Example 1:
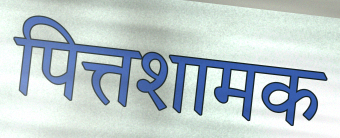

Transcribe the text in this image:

पित्तशामक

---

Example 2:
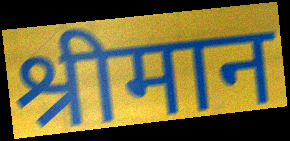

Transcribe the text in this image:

श्रीमान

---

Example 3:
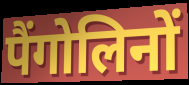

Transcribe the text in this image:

पैंगोलिनों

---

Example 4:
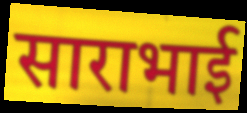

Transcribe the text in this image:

साराभाई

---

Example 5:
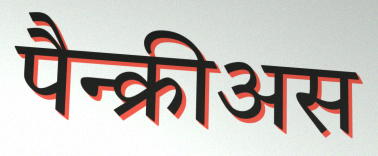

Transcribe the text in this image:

पैन्क्रीअस